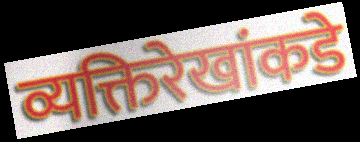
व्यक्तिरेखांकडे